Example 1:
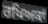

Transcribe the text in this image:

ਰਖਿਅਕਾਂ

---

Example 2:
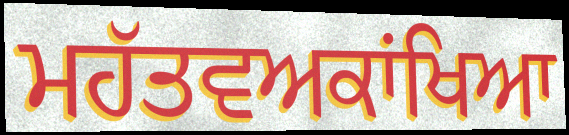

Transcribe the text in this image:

ਮਹੱਤਵਅਕਾਂਖਿਆ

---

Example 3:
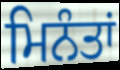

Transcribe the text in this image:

ਮਿਨੰਤਾਂ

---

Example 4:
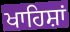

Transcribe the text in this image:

ਖਾਹਿਸ਼ਾਂ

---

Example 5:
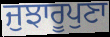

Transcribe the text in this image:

ਜੁਝਾਰੂਪੁਣਾ